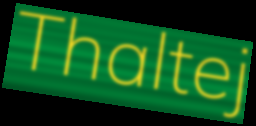
Thaltej